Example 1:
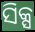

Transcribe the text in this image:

ସିକ୍ସ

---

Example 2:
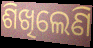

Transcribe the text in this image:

ଶିଖିଲେଣି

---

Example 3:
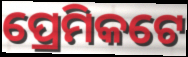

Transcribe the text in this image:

ପ୍ରେମିକଟେ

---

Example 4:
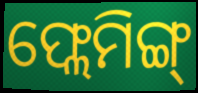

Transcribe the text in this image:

ଫ୍ଲେମିଙ୍ଗ୍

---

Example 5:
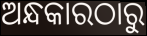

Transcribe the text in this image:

ଅନ୍ଧକାରଠାରୁ